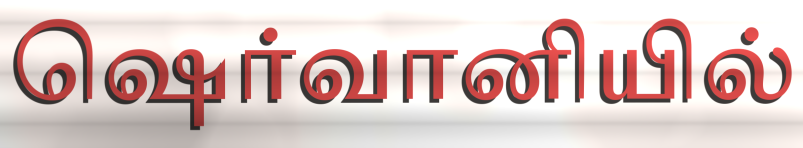
ஷெர்வானியில்